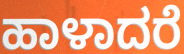
ಹಾಳಾದರೆ